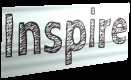
Inspire